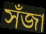
সঁজা